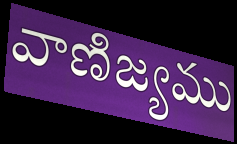
వాణిజ్యము